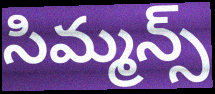
సిమ్మన్స్